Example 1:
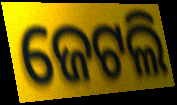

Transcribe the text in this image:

ଜେଟଲି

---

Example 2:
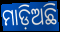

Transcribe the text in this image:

ମାଡ଼ିଅଛି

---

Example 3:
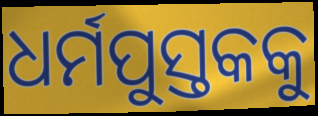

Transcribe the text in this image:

ଧର୍ମପୁସ୍ତକକୁ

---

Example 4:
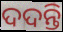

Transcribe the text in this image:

ଦଦନ୍ତି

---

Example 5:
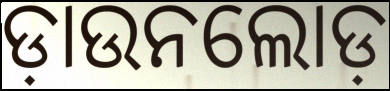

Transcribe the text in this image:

ଡ଼ାଉନଲୋଡ଼